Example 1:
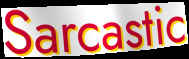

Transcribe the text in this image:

Sarcastic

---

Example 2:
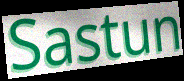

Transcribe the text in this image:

Sastun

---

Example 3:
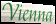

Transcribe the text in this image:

Vienna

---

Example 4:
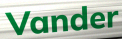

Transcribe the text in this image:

Vander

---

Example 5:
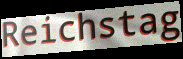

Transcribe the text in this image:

Reichstag